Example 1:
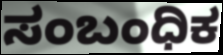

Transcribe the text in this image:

ಸಂಬಂಧಿಕ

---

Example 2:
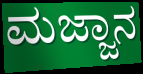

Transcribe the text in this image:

ಮಜ್ಜಾನ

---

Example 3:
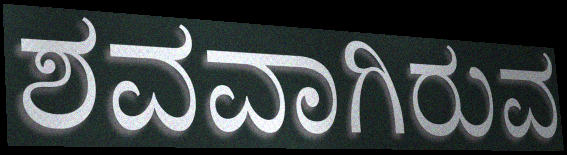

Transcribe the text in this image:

ಶವವಾಗಿರುವ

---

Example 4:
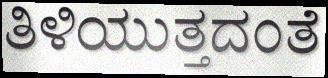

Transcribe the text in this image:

ತಿಳಿಯುತ್ತದಂತೆ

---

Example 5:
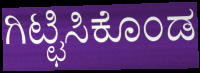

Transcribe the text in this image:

ಗಿಟ್ಟಿಸಿಕೊಂಡ